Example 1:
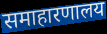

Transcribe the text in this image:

समाहारणालय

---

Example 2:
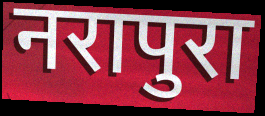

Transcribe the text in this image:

नरापुरा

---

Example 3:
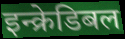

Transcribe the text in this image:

इन्क्रेडिबल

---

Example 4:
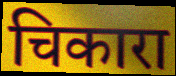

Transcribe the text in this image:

चिकारा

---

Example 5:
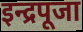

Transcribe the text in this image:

इन्द्रपूजा